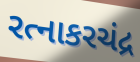
રત્નાકરચંદ્ર